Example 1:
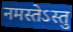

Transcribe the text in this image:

नमस्तेऽस्तु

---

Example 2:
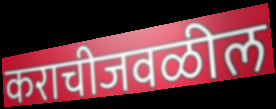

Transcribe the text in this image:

कराचीजवळील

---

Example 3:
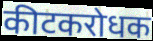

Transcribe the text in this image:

कीटकरोधक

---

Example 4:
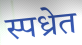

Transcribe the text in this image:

स्पध्रेत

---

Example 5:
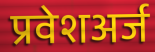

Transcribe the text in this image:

प्रवेशअर्ज